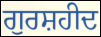
ਗੁਰਸ਼ਹੀਦ